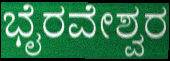
ಭೈರವೇಶ್ವರ